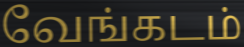
வேங்கடம்